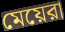
মেয়েরা